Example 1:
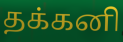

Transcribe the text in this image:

தக்கனி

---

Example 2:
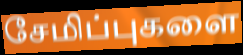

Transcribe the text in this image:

சேமிப்புகளை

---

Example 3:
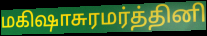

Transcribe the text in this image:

மகிஷாசுரமர்த்தினி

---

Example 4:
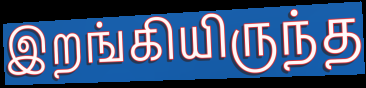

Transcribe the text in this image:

இறங்கியிருந்த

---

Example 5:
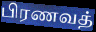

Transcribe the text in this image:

பிரணவத்